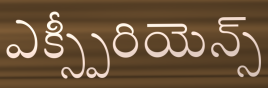
ఎక్స్పీరియెన్స్